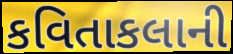
કવિતાકલાની